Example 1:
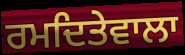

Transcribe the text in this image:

ਰਮਦਿਤੇਵਾਲਾ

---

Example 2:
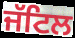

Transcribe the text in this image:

ਜੱਟਿਲ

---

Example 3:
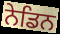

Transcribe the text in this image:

ਨੇਡਿਨ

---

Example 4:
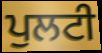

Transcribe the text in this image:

ਪੁਲਟੀ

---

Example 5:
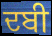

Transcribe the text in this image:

ਦਬੀ